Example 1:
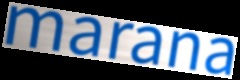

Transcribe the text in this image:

marana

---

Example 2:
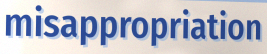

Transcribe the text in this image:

misappropriation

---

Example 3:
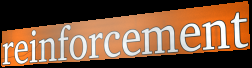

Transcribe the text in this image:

reinforcement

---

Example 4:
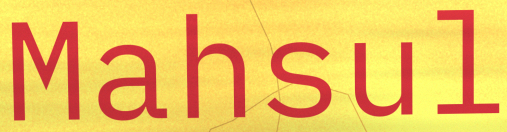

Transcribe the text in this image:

Mahsul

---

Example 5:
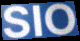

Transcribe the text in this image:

SIO